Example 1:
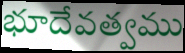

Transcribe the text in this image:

భూదేవత్వము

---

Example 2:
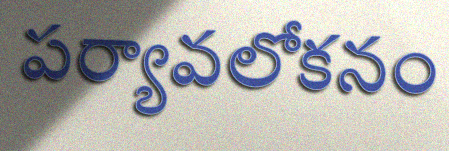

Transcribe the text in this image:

పర్యావలోకనం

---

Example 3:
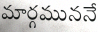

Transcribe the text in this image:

మార్గముననే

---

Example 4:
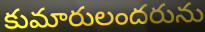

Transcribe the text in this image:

కుమారులందరును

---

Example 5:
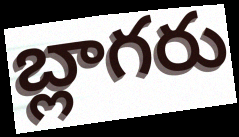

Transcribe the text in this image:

బ్లాగరు